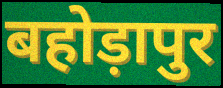
बहोड़ापुर